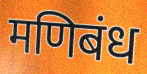
मणिबंध